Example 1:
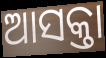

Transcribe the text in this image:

ଆସକ୍ତା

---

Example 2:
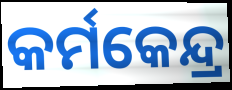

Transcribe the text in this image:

କର୍ମକେନ୍ଦ୍ର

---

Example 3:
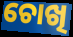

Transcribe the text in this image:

ଚୋଖି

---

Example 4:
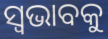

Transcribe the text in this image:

ସ୍ୱଭାବକୁ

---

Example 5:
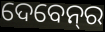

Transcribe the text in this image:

ଦେବେନ୍‌ର